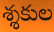
శ్శకుల